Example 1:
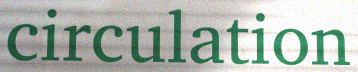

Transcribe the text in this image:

circulation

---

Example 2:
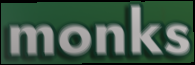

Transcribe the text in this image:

monks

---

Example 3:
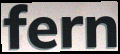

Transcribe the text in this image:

fern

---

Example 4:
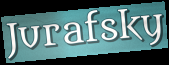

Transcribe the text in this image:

Jurafsky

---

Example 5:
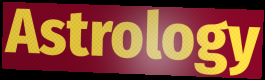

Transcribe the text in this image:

Astrology